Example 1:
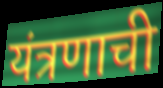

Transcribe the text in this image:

यंत्रणाची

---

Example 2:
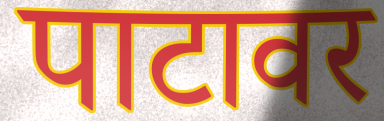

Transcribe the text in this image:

पाटावर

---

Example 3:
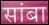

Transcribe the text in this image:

सांबा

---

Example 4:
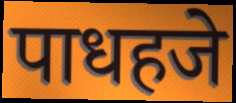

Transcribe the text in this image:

पाधहजे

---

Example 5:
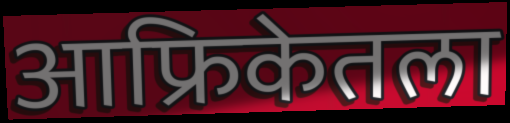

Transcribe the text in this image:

आफ्रिकेतला